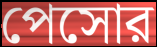
পেসোর